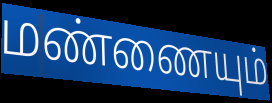
மண்ணையும்